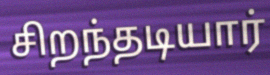
சிறந்தடியார்